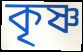
কৃষ্ণ